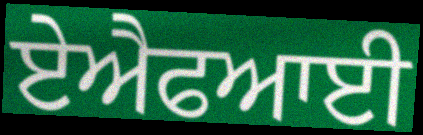
ਏਐਫਆਈ